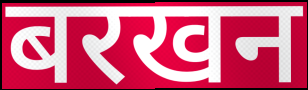
बरखन